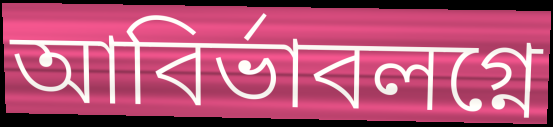
আবির্ভাবলগ্নে